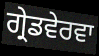
ਗ੍ਰੇਡਵੇਰਵਾ